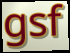
gsf